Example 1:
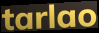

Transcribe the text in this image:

tarlao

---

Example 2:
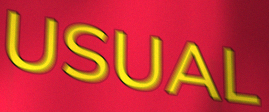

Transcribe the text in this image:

USUAL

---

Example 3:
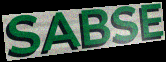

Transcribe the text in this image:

SABSE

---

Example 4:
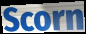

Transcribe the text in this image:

Scorn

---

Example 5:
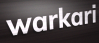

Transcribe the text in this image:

warkari